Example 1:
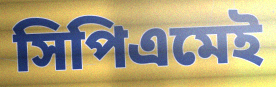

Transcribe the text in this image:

সিপিএমেই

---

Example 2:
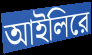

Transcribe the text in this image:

আইলিরে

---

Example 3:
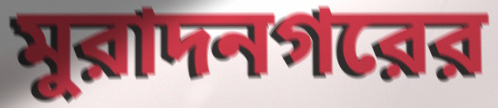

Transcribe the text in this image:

মুরাদনগরের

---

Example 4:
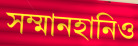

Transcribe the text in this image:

সম্মানহানিও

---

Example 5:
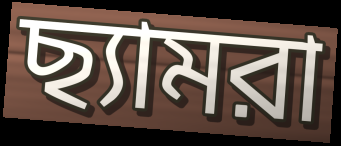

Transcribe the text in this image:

ছ্যামরা